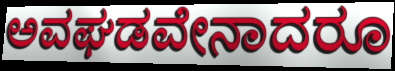
ಅವಘಡವೇನಾದರೂ